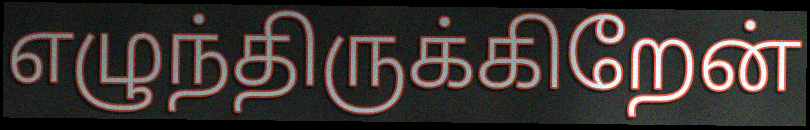
எழுந்திருக்கிறேன்